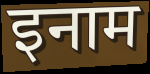
इनाम